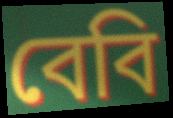
বেবি